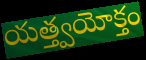
యత్త్వయోక్తం